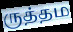
ருத்தம